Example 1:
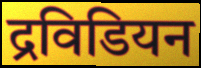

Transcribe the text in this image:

द्रविडियन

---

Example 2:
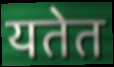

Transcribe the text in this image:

यतेत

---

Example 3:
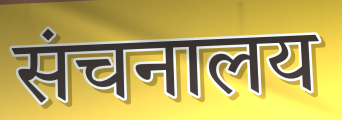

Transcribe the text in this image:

संचनालय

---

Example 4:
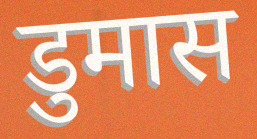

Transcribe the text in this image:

डुमास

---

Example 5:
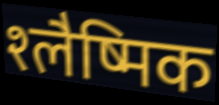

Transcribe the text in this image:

श्लैष्मिक